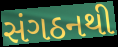
સંગઠનથી